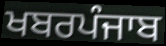
ਖਬਰਪੰਜਾਬ